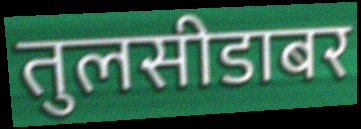
तुलसीडाबर